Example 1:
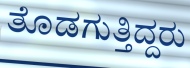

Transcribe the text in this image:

ತೊಡಗುತ್ತಿದ್ದರು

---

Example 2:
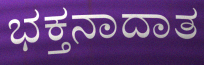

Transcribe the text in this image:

ಭಕ್ತನಾದಾತ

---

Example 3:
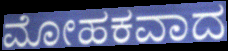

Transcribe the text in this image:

ಮೋಹಕವಾದ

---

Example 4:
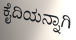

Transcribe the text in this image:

ಕೈದಿಯನ್ನಾಗಿ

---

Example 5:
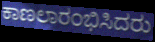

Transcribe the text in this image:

ಕಾಣಲಾರಂಭಿಸಿದರು